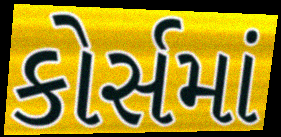
કોર્સમાં